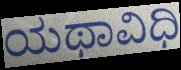
ಯಥಾವಿಧಿ